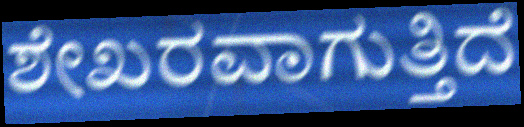
ಶೇಖರವಾಗುತ್ತಿದೆ